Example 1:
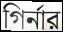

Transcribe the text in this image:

গির্নার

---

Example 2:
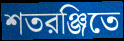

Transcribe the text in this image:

শতরঞ্জিতে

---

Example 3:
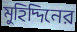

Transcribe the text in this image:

মুহিদ্দিনের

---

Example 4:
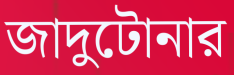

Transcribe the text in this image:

জাদুটোনার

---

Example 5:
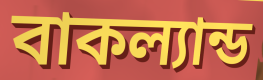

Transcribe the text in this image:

বাকল্যান্ড